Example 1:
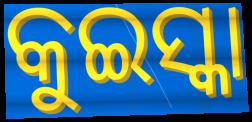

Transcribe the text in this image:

କୁଇସ୍କା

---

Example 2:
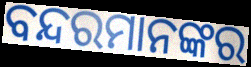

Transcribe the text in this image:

ବନ୍ଦରମାନଙ୍କର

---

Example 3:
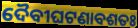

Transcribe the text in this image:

ଦୈବୀଘଟଣାବଶତଃ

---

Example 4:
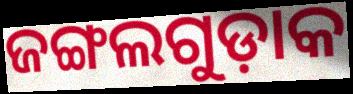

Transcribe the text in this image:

ଜଙ୍ଗଲଗୁଡ଼ାକ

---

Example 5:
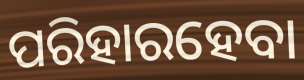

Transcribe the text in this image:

ପରିହାରହେବା